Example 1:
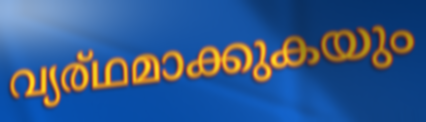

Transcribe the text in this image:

വ്യര്ഥമാക്കുകയും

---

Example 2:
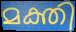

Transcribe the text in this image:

മക്തി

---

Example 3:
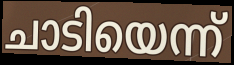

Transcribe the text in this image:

ചാടിയെന്ന്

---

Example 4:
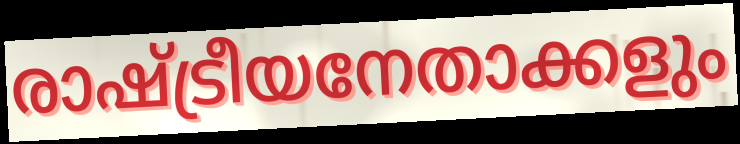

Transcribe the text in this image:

രാഷ്ട്രീയനേതാക്കളും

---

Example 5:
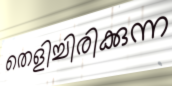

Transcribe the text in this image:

തെളിച്ചിരിക്കുന്ന